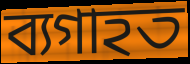
ব্যগাহত